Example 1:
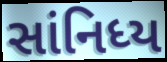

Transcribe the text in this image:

સાંનિધ્ય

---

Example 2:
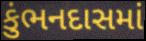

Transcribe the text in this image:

કુંભનદાસમાં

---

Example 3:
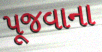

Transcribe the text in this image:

પૂજવાના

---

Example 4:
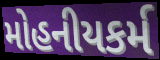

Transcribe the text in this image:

મોહનીયકર્મ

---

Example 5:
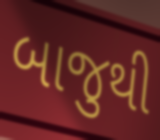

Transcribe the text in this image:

બાજુથી